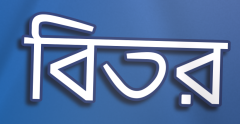
বিতর